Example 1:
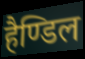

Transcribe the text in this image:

हैण्डिल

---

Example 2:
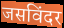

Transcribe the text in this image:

जसविंदर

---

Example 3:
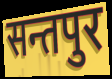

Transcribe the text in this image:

सन्तपुर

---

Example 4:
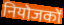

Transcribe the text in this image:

नियोजकों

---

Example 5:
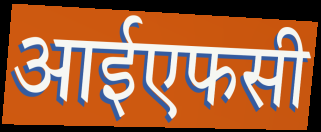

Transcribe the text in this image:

आईएफसी